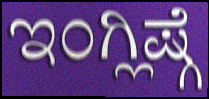
ಇಂಗ್ಲಿಷ್ಗೆ